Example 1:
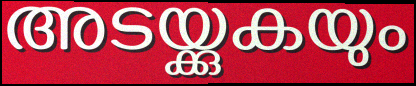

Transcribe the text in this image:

അടയ്ക്കുകയും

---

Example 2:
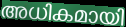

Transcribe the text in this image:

അധികമായി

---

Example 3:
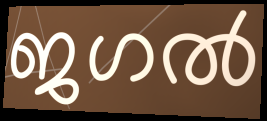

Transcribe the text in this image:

ജഗൽ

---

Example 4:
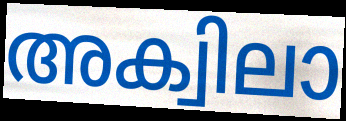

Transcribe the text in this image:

അക്വിലാ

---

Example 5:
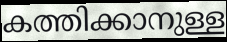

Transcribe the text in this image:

കത്തിക്കാനുള്ള